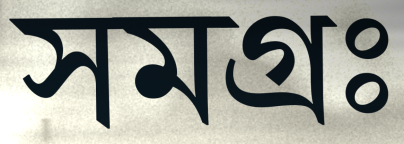
সমগ্রঃ